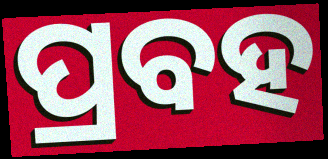
ପ୍ରବହ